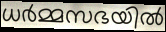
ധർമ്മസഭയിൽ